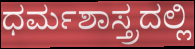
ಧರ್ಮಶಾಸ್ತ್ರದಲ್ಲಿ